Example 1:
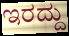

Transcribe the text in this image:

ಇರದ್ದು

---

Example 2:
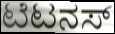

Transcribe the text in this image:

ಟೆಟನಸ್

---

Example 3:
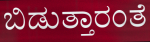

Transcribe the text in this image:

ಬಿಡುತ್ತಾರಂತೆ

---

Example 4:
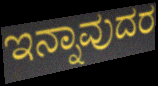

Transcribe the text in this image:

ಇನ್ನಾವುದರ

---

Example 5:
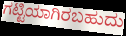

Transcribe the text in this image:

ಗಟ್ಟಿಯಾಗಿರಬಹುದು